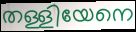
തള്ളിയേനെ